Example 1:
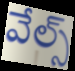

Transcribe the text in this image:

వేల్స్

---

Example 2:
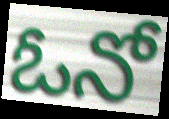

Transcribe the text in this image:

ఓనో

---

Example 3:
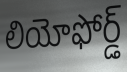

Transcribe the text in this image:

లియోఫోర్డ్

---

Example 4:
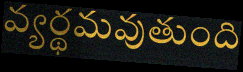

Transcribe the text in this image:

వ్యర్థమవుతుంది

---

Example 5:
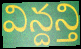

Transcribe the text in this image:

విన్దన్తి